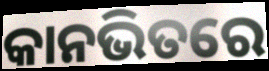
କାନଭିତରେ